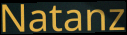
Natanz